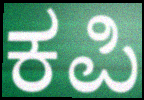
ಕಪಿ